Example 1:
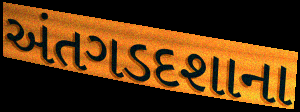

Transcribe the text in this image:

અંતગડદશાના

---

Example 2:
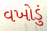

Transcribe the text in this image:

વખોડું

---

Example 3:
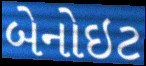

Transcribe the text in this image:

બેનોઇટ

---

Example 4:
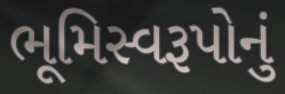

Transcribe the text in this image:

ભૂમિસ્વરૂપોનું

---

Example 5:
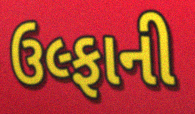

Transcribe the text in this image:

ઉલ્ફાની